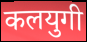
कलयुगी